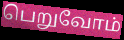
பெறுவோம்